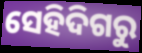
ସେହିଦିଗରୁ